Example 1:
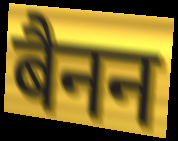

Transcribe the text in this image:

बैनन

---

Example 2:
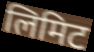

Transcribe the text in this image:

लिमिट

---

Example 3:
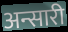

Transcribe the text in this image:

अन्सारी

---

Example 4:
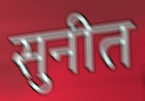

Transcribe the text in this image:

सुनीत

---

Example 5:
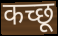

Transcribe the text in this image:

कच्छू